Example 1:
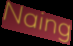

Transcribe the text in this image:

Naing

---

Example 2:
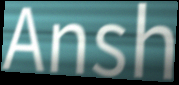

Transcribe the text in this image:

Ansh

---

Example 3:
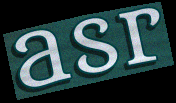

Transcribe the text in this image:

asr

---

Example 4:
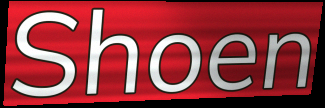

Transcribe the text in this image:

Shoen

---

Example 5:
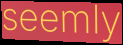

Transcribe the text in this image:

seemly